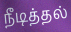
நீடித்தல்